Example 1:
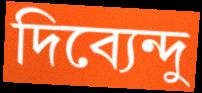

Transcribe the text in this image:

দিব্যেন্দু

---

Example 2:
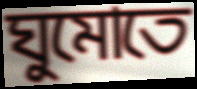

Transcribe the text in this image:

ঘুমোতে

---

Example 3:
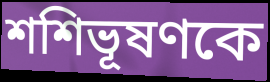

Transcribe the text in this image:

শশিভূষণকে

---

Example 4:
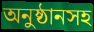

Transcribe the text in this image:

অনুষ্ঠানসহ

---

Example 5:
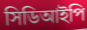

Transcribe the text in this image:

সিডিআইপি